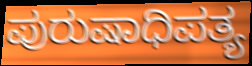
ಪುರುಷಾಧಿಪತ್ಯ